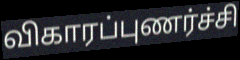
விகாரப்புணர்ச்சி